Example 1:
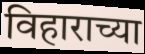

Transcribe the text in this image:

विहाराच्या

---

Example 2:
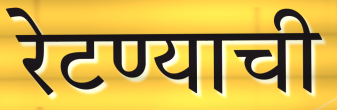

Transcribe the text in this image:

रेटण्याची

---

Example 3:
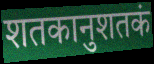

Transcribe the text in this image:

शतकानुशतकं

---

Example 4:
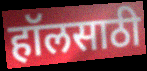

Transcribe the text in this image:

हॉलसाठी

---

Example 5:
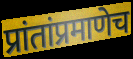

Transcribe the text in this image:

प्रांतांप्रमाणेच